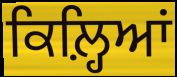
ਕਿਲ਼੍ਹਿਆਂ